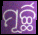
ମୂର୍ଚ୍ଛି